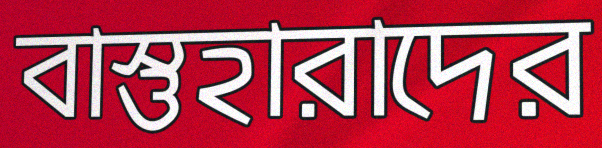
বাস্তুহারাদের